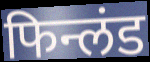
फिन्लंड